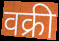
वक्री